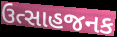
ઉત્સાહજનક